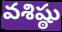
వశిష్ఠు